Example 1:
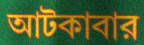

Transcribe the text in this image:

আটকাবার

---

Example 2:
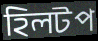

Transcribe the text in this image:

হিলটপ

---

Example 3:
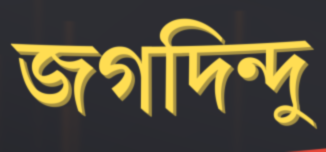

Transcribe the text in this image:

জগদিন্দু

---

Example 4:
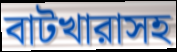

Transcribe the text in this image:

বাটখারাসহ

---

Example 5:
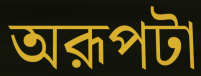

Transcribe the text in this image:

অরূপটা